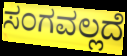
ಸಂಗವಲ್ಲದೆ